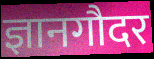
ज्ञानगौदर